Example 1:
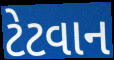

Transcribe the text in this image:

ટેટવાન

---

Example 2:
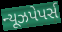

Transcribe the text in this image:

ન્યૂઝપેપર્સ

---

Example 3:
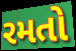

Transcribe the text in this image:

રમતો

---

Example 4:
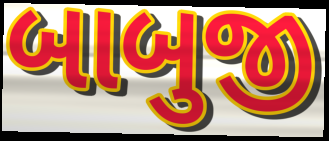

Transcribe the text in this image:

બાબુજી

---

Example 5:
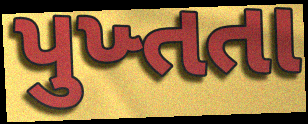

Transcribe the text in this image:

પુખ્તતા